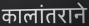
कालांतराने